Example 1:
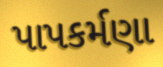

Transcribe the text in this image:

પાપકર્મણા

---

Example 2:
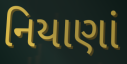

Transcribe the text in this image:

નિયાણાં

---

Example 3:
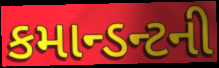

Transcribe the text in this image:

કમાન્ડન્ટની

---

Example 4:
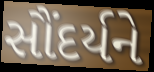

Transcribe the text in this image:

સૌંદર્યને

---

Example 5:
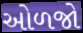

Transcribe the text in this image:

ઓળજો